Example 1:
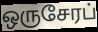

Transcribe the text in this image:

ஒருசேரப்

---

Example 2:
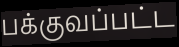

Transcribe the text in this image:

பக்குவப்பட்ட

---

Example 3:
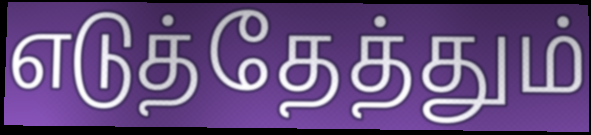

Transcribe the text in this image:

எடுத்தேத்தும்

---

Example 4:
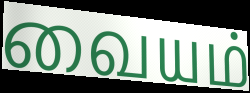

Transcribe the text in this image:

வையம்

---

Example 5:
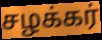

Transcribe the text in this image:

சழக்கர்